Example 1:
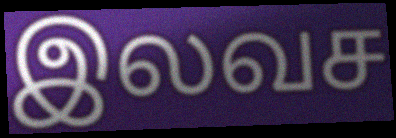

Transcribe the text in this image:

இலவச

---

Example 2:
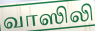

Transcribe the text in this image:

வாஸிலி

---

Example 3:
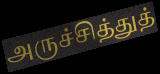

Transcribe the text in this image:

அருச்சித்துத்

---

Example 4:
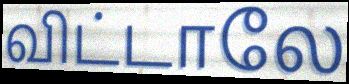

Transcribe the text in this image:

விட்டாலே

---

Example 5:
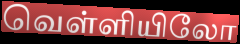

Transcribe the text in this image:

வெள்ளியிலோ